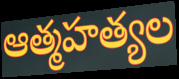
ఆత్మహత్యల